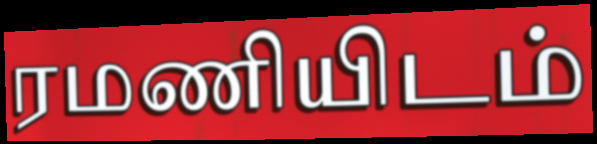
ரமணியிடம்